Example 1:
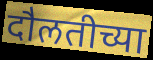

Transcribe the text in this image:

दौलतीच्या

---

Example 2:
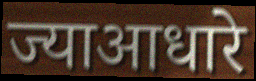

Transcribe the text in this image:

ज्याआधारे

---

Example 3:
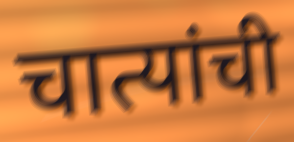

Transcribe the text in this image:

चात्यांची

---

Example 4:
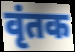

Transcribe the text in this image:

वृंतक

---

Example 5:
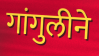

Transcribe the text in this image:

गांगुलीने